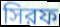
সিরফ